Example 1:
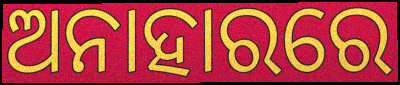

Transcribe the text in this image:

ଅନାହାରରେ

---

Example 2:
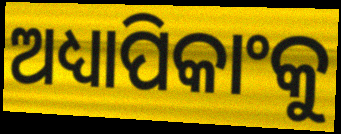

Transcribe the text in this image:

ଅଧ୍ୟାପିକାଂକୁ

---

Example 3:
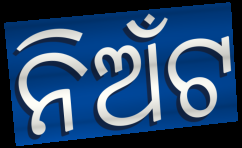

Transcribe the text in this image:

ନିଅଁଟ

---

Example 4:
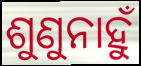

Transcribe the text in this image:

ଶୁଣୁନାହୁଁ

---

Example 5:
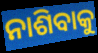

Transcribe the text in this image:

ନାଶିବାକୁ